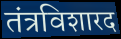
तंत्रविशारद